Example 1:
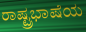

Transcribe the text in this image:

ರಾಷ್ಟ್ರಭಾಷೆಯ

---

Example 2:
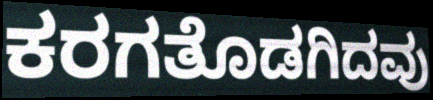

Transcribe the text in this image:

ಕರಗತೊಡಗಿದವು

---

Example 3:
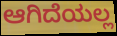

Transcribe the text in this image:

ಆಗಿದೆಯಲ್ಲ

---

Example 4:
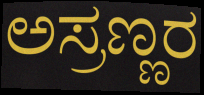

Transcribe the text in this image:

ಅಸ್ರಣ್ಣರ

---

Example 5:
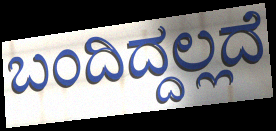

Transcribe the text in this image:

ಬಂದಿದ್ದಲ್ಲದೆ